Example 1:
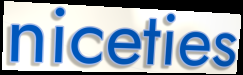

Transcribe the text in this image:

niceties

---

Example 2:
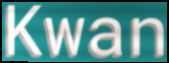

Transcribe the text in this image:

Kwan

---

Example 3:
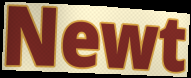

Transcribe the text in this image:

Newt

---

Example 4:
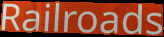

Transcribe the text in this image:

Railroads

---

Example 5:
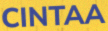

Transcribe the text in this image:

CINTAA